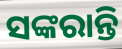
ସଙ୍କରାନ୍ତି